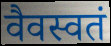
वैवस्वतं